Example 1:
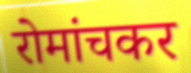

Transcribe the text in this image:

रोमांचकर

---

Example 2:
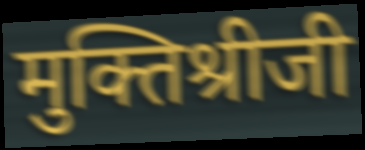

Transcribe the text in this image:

मुक्तिश्रीजी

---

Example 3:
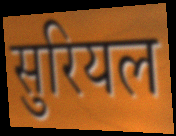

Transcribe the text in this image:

सुरियल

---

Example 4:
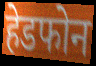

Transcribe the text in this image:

हेडफोन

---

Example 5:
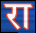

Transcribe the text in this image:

रा